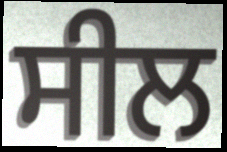
ਸੀਲ